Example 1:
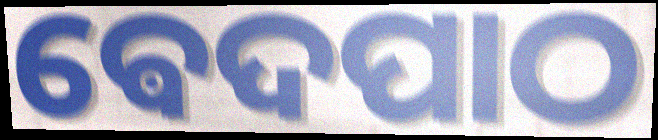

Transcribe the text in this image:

ଵେଦପାଠ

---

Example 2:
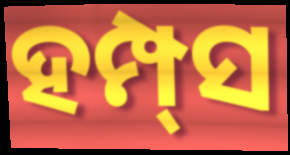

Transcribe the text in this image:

ହମ୍ପ୍‌ସ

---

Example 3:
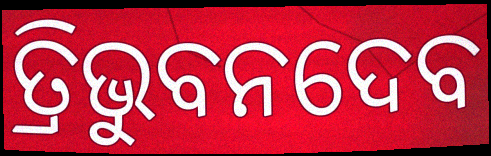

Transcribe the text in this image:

ତ୍ରିଭୁବନଦେବ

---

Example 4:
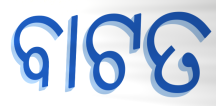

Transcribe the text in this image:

ବାଟତ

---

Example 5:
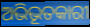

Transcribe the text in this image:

ଅଭିଭୂତକାରୀ